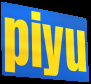
piyu